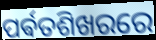
ପର୍ଵତଶିଖରରେ